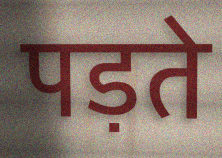
पड़ते